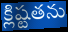
క్లిష్టతను